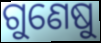
ଗୁଣେଷୁ